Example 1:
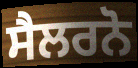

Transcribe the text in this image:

ਸੈਲਰਨੋ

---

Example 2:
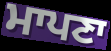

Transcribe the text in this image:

ਮਾਪਣਾ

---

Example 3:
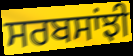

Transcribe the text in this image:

ਸਰਬਸਾਂਝੀ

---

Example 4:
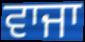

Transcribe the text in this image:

ਵਾਜਾ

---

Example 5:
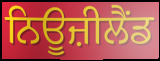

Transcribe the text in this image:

ਨਿਊਜ਼ੀਲੈਂਡ